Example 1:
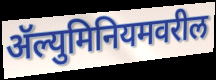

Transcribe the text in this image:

ॲल्युमिनियमवरील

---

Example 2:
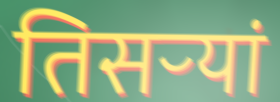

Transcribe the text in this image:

तिसऱ्यां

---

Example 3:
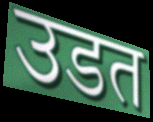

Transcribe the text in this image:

उडत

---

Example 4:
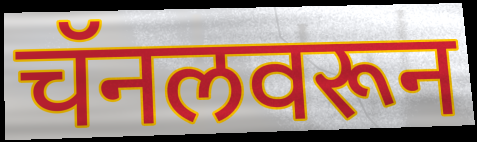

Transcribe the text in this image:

चॅनलवरून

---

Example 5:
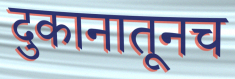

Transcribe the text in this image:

दुकानातूनच